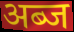
अब्ज